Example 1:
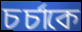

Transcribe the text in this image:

চর্চাকে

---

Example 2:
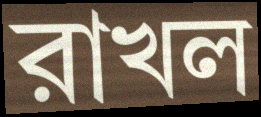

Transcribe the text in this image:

রাখল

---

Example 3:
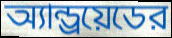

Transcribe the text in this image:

অ্যান্ড্রয়েডের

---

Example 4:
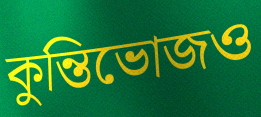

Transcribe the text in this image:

কুন্তিভোজও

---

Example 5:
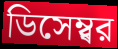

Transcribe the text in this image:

ডিসেম্ব্বর